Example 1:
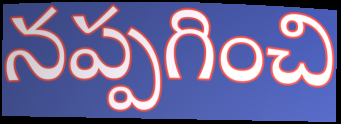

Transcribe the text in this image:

నప్పగించి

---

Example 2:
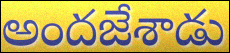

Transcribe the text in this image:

అందజేశాడు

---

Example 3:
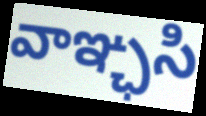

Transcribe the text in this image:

వాఞ్ఛసి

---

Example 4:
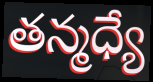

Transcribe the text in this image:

తన్మధ్యే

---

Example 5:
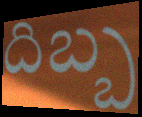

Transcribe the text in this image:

దిబ్బ